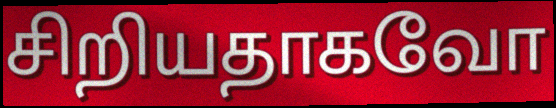
சிறியதாகவோ